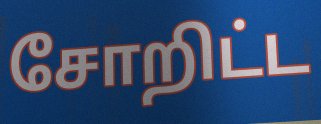
சோறிட்ட